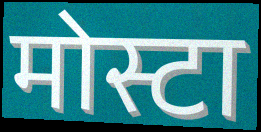
मोस्टा